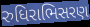
રુધિરાભિસરણ